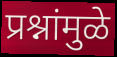
प्रश्नांमुळे